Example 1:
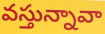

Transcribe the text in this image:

వస్తున్నావా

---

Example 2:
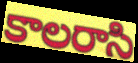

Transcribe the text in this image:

కాలరాసి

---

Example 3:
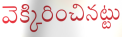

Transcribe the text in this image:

వెక్కిరించినట్టు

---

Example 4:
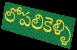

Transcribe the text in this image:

లోపలికెళ్ళి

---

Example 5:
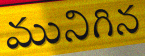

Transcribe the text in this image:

మునిగిన